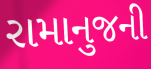
રામાનુજની